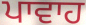
ਪਾਵਾਹ